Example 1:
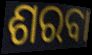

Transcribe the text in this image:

ଶରବା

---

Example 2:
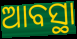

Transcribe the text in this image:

ଆବସ୍ଥା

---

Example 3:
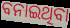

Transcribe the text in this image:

ବନାଇଥିବା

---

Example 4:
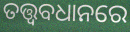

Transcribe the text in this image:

ତତ୍ତ୍ୱବଧାନରେ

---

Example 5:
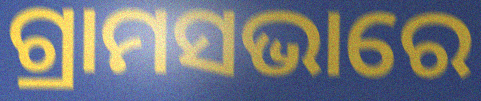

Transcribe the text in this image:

ଗ୍ରାମସଭାରେ